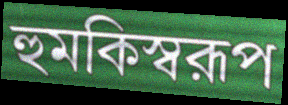
হুমকিস্বরূপ